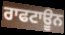
ਰਾਫਟਾਊਨ